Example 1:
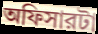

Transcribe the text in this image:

অফিসারটা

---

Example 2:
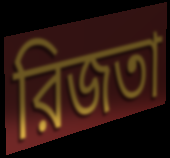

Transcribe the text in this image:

রিজতা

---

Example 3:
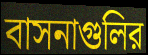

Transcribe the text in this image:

বাসনাগুলির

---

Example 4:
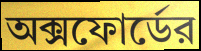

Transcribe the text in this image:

অক্সফোর্ডের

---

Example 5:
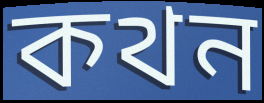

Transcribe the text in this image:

কথন